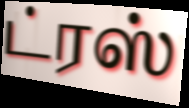
ட்ரஸ்